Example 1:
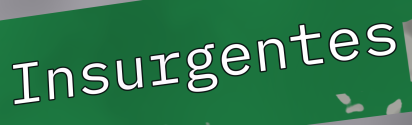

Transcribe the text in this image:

Insurgentes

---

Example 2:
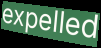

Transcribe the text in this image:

expelled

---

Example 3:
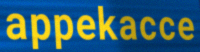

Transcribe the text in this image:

appekacce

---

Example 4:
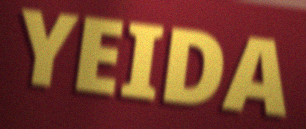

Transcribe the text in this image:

YEIDA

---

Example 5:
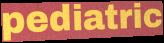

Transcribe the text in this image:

pediatric